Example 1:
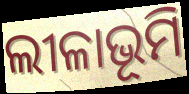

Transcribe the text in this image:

ଲୀଳାଭୂମି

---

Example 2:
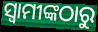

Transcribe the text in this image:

ସ୍ବାମୀଙ୍କଠାରୁ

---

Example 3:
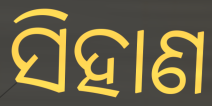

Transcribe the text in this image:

ସିହାଣ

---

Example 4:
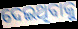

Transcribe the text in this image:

ଦେଇଥିବାକୁ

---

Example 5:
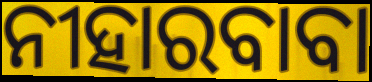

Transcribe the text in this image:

ନୀହାରବାବା